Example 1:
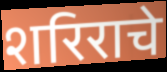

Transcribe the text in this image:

शरिराचे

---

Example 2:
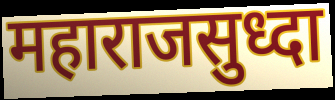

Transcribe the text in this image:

महाराजसुध्दा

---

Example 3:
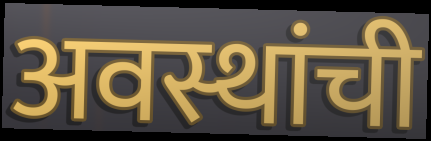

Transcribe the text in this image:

अवस्थांची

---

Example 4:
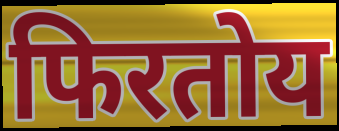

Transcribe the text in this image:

फिरतोय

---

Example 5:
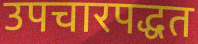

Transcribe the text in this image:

उपचारपद्धत